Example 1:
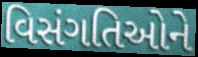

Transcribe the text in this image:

વિસંગતિઓને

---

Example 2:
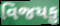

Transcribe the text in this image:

વિજયકુ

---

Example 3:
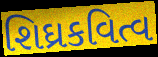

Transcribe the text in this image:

શિઘ્રકવિત્વ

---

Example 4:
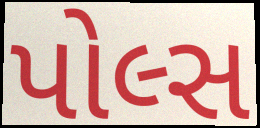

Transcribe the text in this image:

પોલ્સ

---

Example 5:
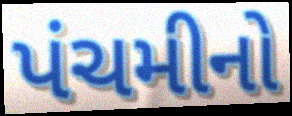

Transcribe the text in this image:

પંચમીનો